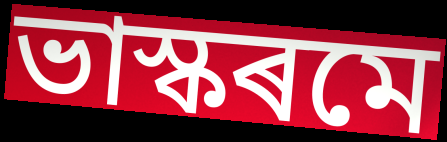
ভাস্কৰমে